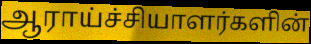
ஆராய்ச்சியாளர்களின்